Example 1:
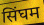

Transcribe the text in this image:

सिंघम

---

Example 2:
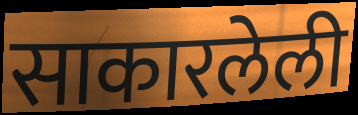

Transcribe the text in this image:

साकारलेली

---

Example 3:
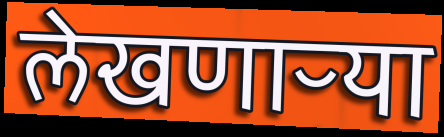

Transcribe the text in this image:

लेखणाऱ्या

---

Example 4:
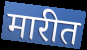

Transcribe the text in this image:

मारीत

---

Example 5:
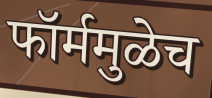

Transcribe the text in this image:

फॉर्ममुळेच